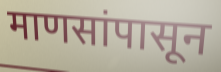
माणसांपासून